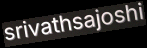
srivathsajoshi